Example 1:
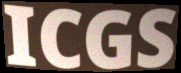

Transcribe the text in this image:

ICGS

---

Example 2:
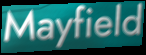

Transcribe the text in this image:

Mayfield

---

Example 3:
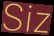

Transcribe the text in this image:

Siz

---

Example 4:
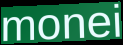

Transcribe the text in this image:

monei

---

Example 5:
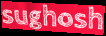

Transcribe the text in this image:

sughosh